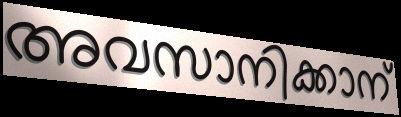
അവസാനിക്കാന്